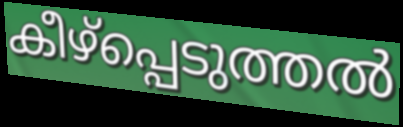
കീഴ്പ്പെടുത്തൽ